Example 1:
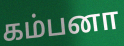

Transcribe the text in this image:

கம்பனா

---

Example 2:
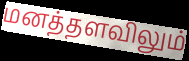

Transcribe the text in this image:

மனத்தளவிலும்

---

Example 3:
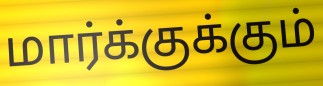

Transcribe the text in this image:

மார்க்குக்கும்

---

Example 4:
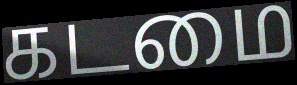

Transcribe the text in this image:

கடமை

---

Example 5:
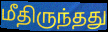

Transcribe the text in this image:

மீதிருந்தது